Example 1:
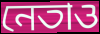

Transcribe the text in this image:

নেতাও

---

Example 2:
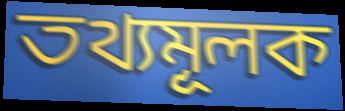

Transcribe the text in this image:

তথ্যমূলক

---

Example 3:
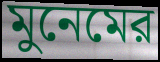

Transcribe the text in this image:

মুনেমের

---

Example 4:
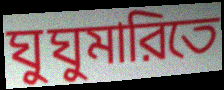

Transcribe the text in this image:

ঘুঘুমারিতে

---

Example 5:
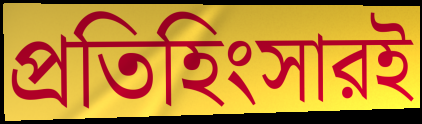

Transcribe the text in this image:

প্রতিহিংসারই